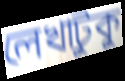
লেখাটুকু